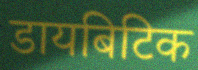
डायबिटिक